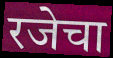
रजेचा